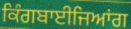
ਕਿੰਗਬਾਈਜਿਆਂਗ